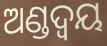
ଅଣ୍ଡଦ୍ୱୟ